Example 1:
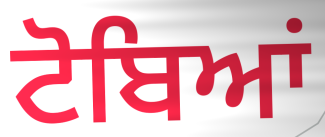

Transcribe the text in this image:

ਟੋਬਿਆਂ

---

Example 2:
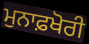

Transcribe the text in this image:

ਮੁਨਾਫ਼ਖੋਰੀ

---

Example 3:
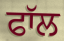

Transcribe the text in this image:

ਫਾੱਲ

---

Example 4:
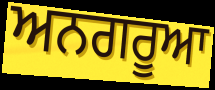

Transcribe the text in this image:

ਅਨਗਰੂਆ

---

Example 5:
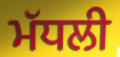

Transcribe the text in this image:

ਮੱਧਲੀ